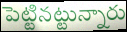
పెట్టినట్టున్నారు